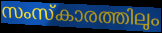
സംസ്‌കാരത്തിലും